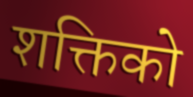
शक्तिको